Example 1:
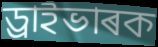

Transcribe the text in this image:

ড্ৰাইভাৰক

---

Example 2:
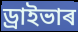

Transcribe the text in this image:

ড্ৰাইভাৰ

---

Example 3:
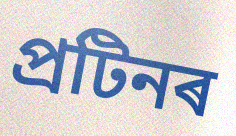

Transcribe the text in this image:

প্ৰটিনৰ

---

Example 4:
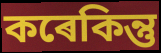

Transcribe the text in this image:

কৰেকিন্তু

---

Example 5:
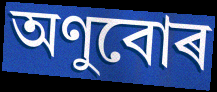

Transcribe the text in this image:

অণুবোৰ